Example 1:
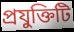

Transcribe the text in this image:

প্রযুক্তিটি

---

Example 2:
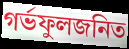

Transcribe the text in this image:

গর্ভফুলজনিত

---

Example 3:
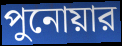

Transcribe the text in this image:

পুনোয়ার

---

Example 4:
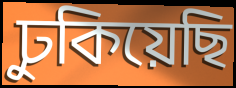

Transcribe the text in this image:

ঢুকিয়েছি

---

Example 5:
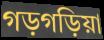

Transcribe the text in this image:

গড়গড়িয়া